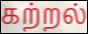
கற்றல்